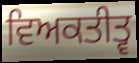
ਵਿਅਕਤੀਤ੍ਵ